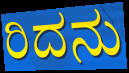
ರಿದನು